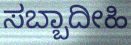
ಸಬ್ಬಾದೀಹಿ